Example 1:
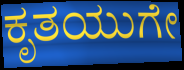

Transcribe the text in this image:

ಕೃತಯುಗೇ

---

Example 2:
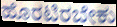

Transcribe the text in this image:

ಹೊರಟಿರಬೇಕು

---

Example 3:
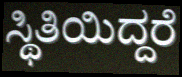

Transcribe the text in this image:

ಸ್ಥಿತಿಯಿದ್ದರೆ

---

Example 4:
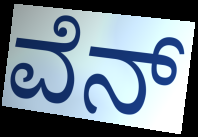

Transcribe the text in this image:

ವೆನ್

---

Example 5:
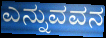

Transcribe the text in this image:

ಎನ್ನುವವನ